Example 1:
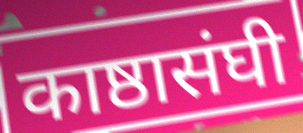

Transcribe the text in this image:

काष्ठासंघी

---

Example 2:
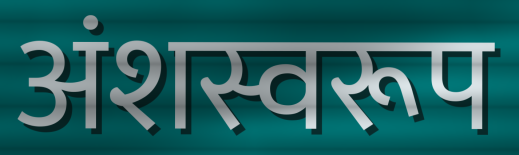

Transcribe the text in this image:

अंशस्वरूप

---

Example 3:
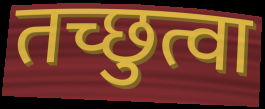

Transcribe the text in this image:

तच्छुत्वा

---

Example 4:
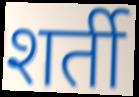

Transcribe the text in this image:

शर्ती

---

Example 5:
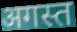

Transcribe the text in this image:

अगस्त